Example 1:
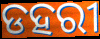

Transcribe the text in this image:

ଡହରୀ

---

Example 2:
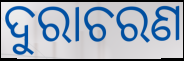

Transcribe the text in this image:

ଦୁରାଚରଣ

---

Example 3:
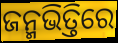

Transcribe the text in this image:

ଜନ୍ମଭିତ୍ତିରେ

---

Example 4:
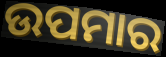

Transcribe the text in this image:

ଉପମାର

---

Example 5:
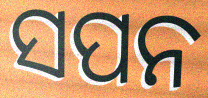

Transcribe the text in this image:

ସପନ